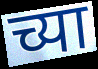
च्या